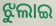
ଝୁଲାଇ